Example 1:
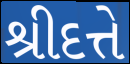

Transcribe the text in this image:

શ્રીદત્તે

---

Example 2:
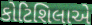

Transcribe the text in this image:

કોટિશિલાએ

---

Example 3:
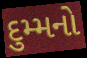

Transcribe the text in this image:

દુમ્મનો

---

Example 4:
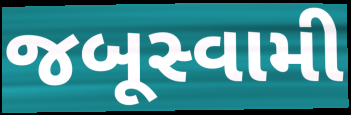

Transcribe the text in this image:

જબૂસ્વામી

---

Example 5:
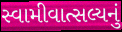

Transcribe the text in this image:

સ્વામીવાત્સલ્યનું